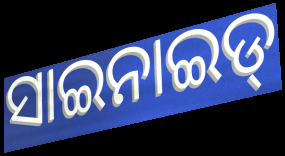
ସାଇନାଇଡ୍